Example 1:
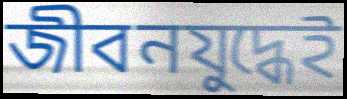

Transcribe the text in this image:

জীবনযুদ্ধেই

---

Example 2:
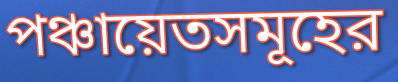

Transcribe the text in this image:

পঞ্চায়েতসমূহের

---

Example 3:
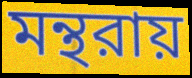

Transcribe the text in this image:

মন্থরায়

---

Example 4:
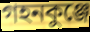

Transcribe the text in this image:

গহনকুঞ্জে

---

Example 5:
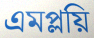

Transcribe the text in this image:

এমপ্লয়ি